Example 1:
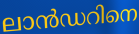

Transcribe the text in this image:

ലാൻഡറിനെ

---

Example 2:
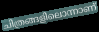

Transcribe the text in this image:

ചിത്രങ്ങളിലൊന്നാണ്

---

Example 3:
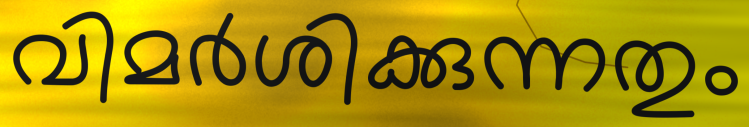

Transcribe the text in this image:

വിമർശിക്കുന്നതും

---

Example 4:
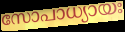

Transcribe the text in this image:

സോപാധ്യായഃ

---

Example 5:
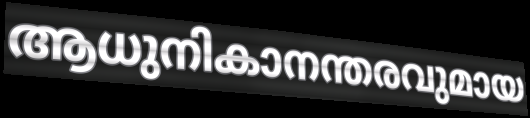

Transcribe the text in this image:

ആധുനികാനന്തരവുമായ